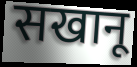
सखानू